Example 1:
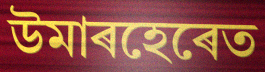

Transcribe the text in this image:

উমাৰহেৰেত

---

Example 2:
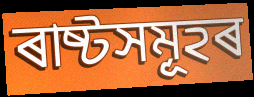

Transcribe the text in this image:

ৰাষ্টসমূহৰ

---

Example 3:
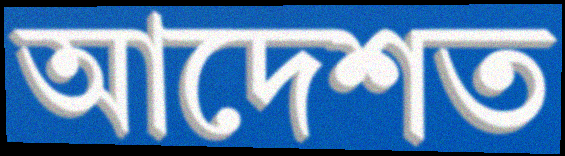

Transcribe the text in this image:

আদেশত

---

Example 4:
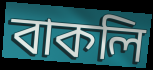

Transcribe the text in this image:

বাকলি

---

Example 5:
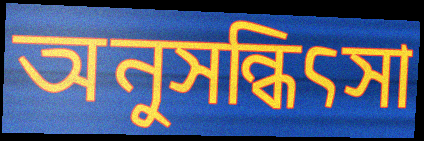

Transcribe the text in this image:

অনুসন্ধিৎসা